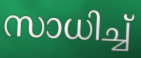
സാധിച്ച്